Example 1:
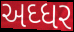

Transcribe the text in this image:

અઘ્ધર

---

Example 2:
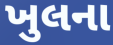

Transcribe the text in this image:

ખુલના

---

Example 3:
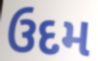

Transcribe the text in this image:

ઉદમ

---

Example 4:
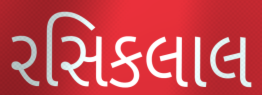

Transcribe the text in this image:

રસિકલાલ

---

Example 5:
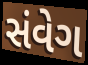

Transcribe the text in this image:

સંવેગ